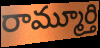
రామ్మూర్తి